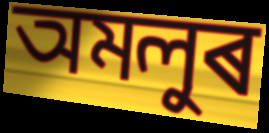
অমলুৰ